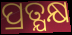
ପ୍ରତ୍ଯକ୍ଷ